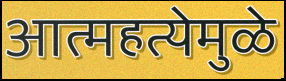
आत्महत्येमुळे